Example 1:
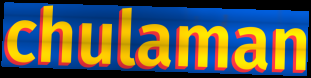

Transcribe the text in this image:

chulaman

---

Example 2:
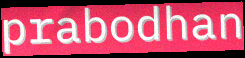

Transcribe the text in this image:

prabodhan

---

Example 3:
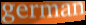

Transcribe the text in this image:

german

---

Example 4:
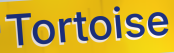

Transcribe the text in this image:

Tortoise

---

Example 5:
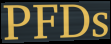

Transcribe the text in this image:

PFDs